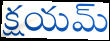
క్షయమ్